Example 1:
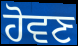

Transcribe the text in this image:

ਹੋਵਣ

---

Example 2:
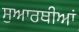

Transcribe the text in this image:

ਸੁਆਰਥੀਆਂ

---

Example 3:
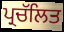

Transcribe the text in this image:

ਪ੍ਰਚੱਲਿਤ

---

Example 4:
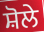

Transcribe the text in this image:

ਸ਼ੋਲੇ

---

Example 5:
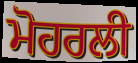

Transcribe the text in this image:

ਮੋਹਰਲੀ